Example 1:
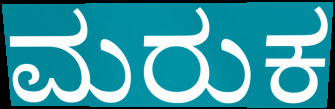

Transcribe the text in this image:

ಮರುಕ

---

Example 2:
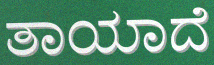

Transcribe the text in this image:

ತಾಯಾದೆ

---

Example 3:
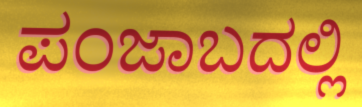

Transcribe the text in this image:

ಪಂಜಾಬದಲ್ಲಿ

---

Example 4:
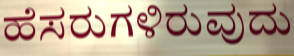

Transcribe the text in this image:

ಹೆಸರುಗಳಿರುವುದು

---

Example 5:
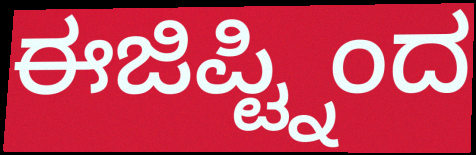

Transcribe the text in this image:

ಈಜಿಪ್ಟ್ನಿಂದ